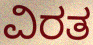
ವಿರತ